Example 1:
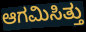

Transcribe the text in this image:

ಆಗಮಿಸಿತ್ತು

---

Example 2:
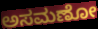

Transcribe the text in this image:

ಅಸಮಣೋ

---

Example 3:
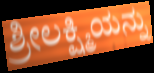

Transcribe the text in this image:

ಶ್ರೀಲಕ್ಷ್ಮಿಯನ್ನು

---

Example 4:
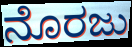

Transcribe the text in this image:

ನೊರಜು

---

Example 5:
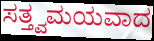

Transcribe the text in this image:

ಸತ್ತ್ವಮಯವಾದ